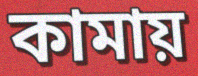
কামায়